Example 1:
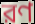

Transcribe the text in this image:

রণ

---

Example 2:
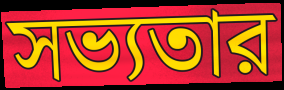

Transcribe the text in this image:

সভ্যতার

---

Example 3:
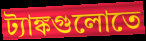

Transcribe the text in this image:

ট্যাঙ্কগুলোতে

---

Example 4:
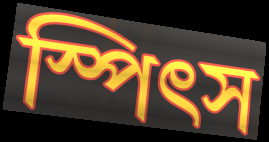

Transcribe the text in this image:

স্পিৎস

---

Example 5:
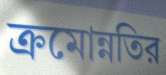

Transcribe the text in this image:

ক্রমোন্নতির